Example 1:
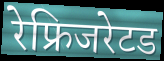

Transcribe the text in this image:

रेफ्रिजरेटड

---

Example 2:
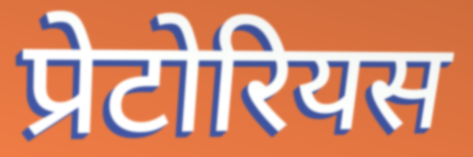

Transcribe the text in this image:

प्रेटोरियस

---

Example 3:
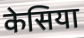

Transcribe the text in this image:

केसिया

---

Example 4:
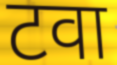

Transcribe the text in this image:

टवा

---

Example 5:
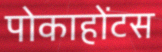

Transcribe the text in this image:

पोकाहोंटस